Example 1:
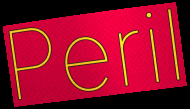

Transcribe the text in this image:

Peril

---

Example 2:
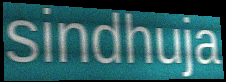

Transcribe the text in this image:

sindhuja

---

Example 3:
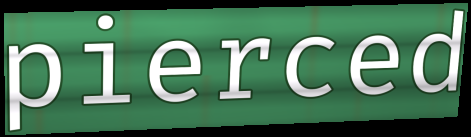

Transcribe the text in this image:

pierced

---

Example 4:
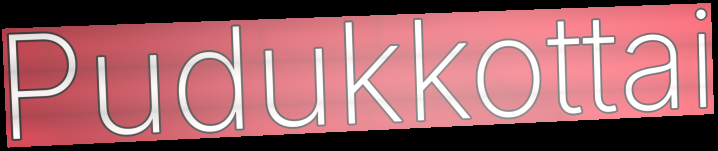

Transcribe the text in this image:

Pudukkottai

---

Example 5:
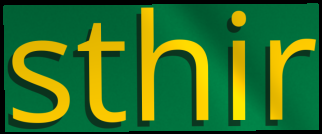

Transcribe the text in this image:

sthir